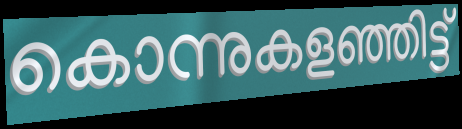
കൊന്നുകളഞ്ഞിട്ട്